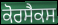
ਕੋਰਸੈਕਸ